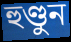
হুণ্ডুন